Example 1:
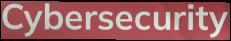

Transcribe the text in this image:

Cybersecurity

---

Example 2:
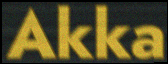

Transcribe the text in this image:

Akka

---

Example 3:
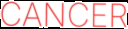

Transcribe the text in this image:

CANCER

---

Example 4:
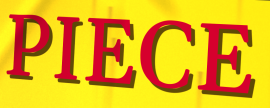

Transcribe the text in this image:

PIECE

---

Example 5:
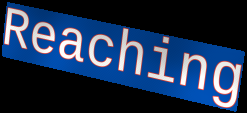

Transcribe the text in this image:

Reaching